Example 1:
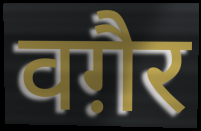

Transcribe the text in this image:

वग़ैर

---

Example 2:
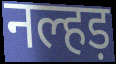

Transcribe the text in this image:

नल्हड़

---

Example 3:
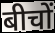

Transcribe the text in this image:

बीचों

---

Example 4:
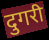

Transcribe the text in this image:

दुगरी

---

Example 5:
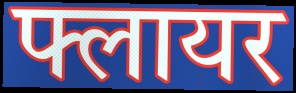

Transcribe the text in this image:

फ्लायर